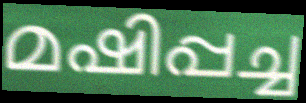
മഷിപ്പച്ച